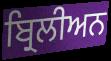
ਬ੍ਰਿਲੀਅਨ